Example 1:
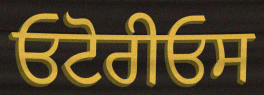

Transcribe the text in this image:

ਓਟੋਰੀਓਸ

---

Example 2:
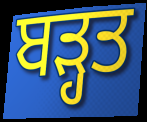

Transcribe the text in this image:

ਬੜ੍ਹਤ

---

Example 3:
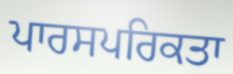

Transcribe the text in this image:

ਪਾਰਸਪਰਿਕਤਾ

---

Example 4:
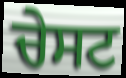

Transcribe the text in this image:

ਚੇਸਟ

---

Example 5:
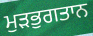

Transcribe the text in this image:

ਮੁੜਭੁਗਤਾਨ